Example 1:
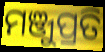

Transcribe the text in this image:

ମଞ୍ଜୁପ୍ରତି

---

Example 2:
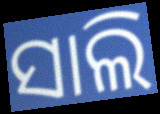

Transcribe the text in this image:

ସାଲି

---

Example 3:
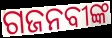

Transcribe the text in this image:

ଗଜନବୀଙ୍କ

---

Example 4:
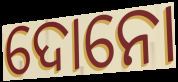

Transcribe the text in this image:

ଦୋନୋ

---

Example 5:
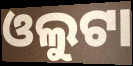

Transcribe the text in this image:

ଓଲୁଟା